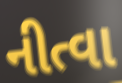
નીત્વા